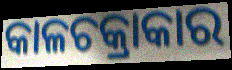
କାଳଚକ୍ରାକାର